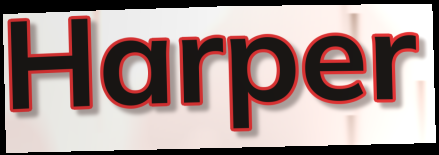
Harper